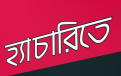
হ্যাচারিতে